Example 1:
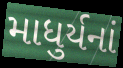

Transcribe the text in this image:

માધુર્યનાં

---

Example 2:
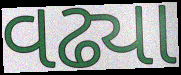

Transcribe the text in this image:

વઢ્યા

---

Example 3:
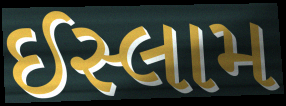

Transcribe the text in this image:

ઈસ્લામ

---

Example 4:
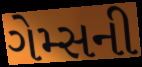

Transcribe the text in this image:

ગેમ્સની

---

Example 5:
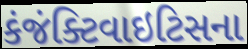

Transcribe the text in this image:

કંજંક્ટિવાઇટિસના